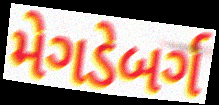
મેગડેબર્ગ